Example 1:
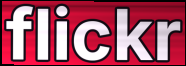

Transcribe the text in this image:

flickr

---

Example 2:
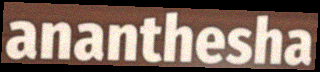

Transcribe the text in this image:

ananthesha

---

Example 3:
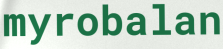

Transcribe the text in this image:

myrobalan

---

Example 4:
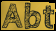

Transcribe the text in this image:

Abt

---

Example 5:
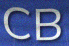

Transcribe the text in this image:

CB